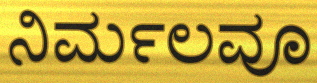
ನಿರ್ಮಲವೂ